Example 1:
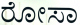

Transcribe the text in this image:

ರೋಸಾ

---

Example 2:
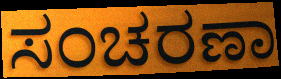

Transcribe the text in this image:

ಸಂಚರಣಾ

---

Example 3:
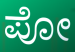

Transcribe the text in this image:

ಪೋ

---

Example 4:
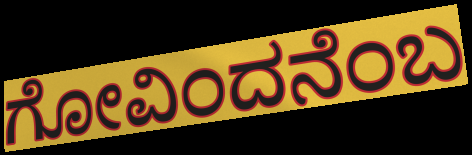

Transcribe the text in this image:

ಗೋವಿಂದನೆಂಬ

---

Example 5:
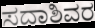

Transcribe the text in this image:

ಸದಾಶಿವರ